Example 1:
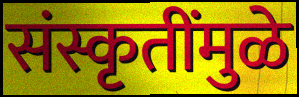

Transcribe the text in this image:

संस्कृतींमुळे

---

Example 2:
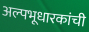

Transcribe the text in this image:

अल्पभूधारकांची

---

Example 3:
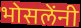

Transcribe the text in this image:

भोसलेंनी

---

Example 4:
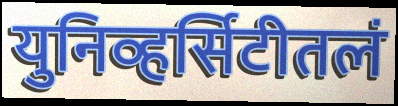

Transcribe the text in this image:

युनिव्हर्सिटीतलं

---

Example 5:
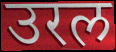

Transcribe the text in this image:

उरल